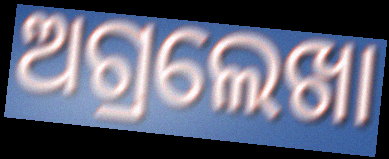
ଅଗ୍ରଲେଖା